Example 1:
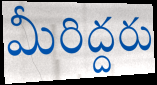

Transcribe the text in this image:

మీరిద్దరు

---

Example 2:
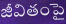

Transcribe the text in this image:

జీవితంపై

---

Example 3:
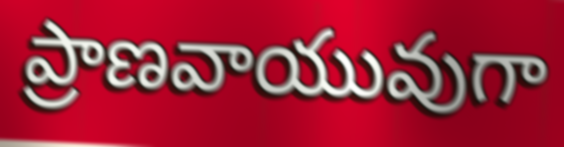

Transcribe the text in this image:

ప్రాణవాయువుగా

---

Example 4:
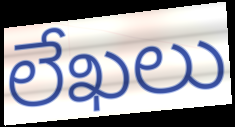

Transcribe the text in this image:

లేఖలు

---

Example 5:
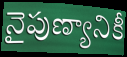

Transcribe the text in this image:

నైపుణ్యానికీ